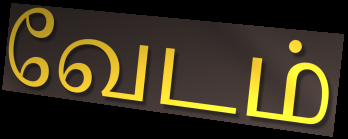
வேடம்